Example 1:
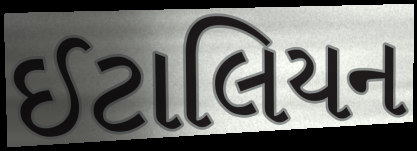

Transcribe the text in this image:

ઈટાલિયન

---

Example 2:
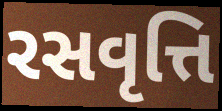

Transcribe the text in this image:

રસવૃત્તિ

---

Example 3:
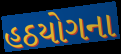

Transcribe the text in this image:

હઠયોગના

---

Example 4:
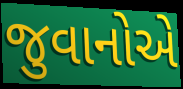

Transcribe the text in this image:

જુવાનોએ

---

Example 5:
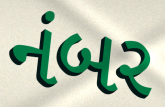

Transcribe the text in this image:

નંબર